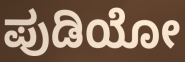
ಪುಡಿಯೋ